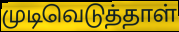
முடிவெடுத்தாள்